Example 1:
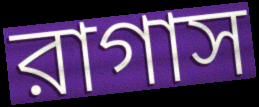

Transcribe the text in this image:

রাগাস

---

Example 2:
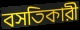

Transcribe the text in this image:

বসতিকারী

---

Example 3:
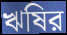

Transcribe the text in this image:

ঋষির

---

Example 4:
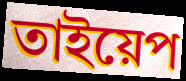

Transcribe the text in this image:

তাইয়েপ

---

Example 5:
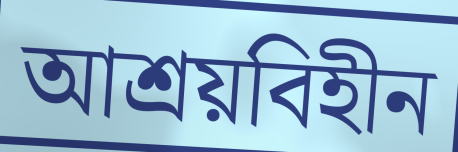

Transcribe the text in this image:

আশ্রয়বিহীন